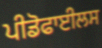
ਪੀਡੋਫਾਈਲਸ